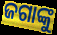
ଜଗାଙ୍କୁ